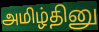
அமிழ்தினு